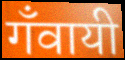
गँवायी